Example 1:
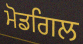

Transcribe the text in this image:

ਮੋਡਗਿਲ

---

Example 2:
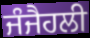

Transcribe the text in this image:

ਜੰਜੈਹਲੀ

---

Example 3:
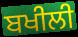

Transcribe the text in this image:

ਬਖੀਲੀ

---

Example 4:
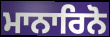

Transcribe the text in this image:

ਮਾਨਾਰਿਨੋ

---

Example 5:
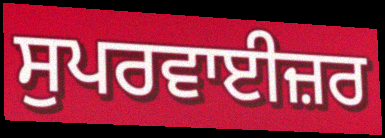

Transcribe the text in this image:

ਸੁਪਰਵਾਈਜ਼ਰ